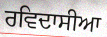
ਰਵਿਦਾਸੀਆ